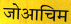
जोआचिम